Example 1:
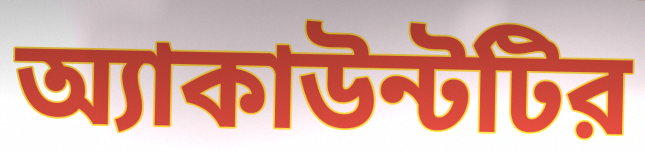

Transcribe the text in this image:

অ্যাকাউন্টটির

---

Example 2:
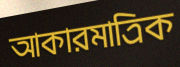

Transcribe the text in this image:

আকারমাত্রিক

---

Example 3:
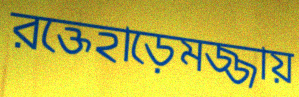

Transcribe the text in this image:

রক্তেহাড়েমজ্জায়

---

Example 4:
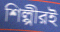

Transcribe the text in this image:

শিল্পীরই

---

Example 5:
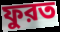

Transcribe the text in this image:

ফুরত